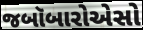
જબૉબારોએસો